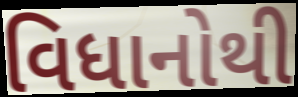
વિધાનોથી